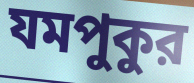
যমপুকুর